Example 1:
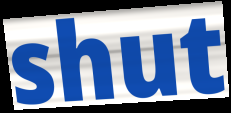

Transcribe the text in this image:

shut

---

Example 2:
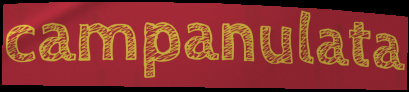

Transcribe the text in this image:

campanulata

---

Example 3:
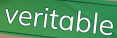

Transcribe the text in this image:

veritable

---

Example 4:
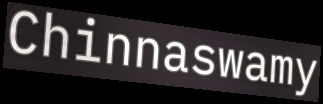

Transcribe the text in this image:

Chinnaswamy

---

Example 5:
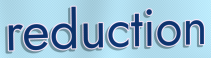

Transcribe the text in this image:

reduction